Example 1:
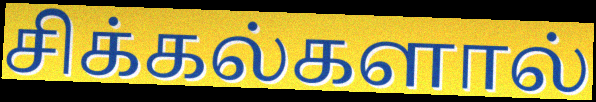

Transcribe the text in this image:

சிக்கல்களால்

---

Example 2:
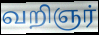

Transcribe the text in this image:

வறிஞர்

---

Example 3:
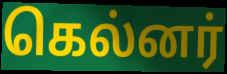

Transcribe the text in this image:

கெல்னர்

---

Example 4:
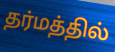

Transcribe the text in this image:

தர்மத்தில்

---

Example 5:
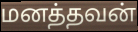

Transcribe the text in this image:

மனத்தவன்